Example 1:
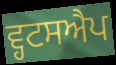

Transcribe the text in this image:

ਵ੍ਹਟਸਐਪ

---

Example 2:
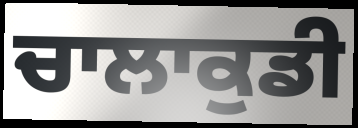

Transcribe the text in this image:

ਚਾਲਾਕੁਡੀ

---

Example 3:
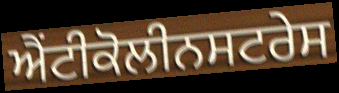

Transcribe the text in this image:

ਐਂਟੀਕੋਲੀਨਸਟਰੇਸ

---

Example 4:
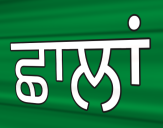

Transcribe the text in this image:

ਛਾਲਾਂ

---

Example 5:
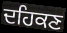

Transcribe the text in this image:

ਦਹਿਕਣ